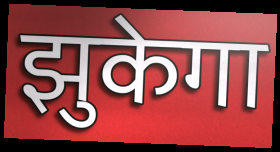
झुकेगा